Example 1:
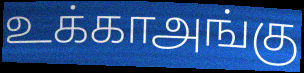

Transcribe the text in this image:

உக்காஅங்கு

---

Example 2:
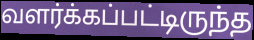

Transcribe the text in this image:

வளர்க்கப்பட்டிருந்த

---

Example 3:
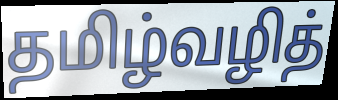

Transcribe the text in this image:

தமிழ்வழித்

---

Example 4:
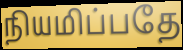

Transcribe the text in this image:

நியமிப்பதே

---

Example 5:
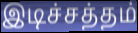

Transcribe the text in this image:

இடிச்சத்தம்